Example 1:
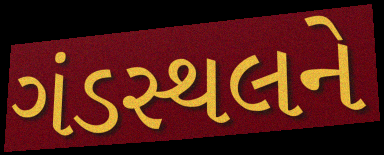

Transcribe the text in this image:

ગંડસ્થલને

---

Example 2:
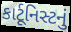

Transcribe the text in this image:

કાર્ટૂનિસ્ટનું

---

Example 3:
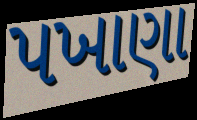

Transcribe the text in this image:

પખાણા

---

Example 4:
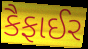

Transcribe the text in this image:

કૈફાઈર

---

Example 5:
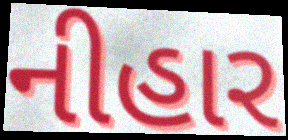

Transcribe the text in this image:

નીહાર